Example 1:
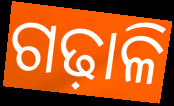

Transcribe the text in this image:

ଗଢ଼ାଳି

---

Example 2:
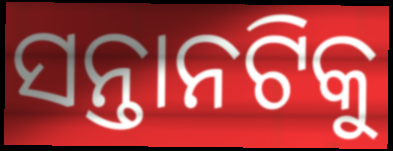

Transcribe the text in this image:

ସନ୍ତାନଟିକୁ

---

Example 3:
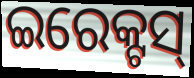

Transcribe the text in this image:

ଇରେକ୍ଟସ୍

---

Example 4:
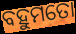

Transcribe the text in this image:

ବହୁମତୋ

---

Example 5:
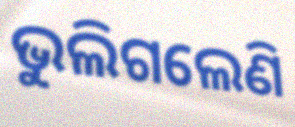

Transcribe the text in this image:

ଭୁଲିଗଲେଣି